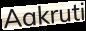
Aakruti